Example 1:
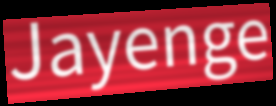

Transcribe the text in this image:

Jayenge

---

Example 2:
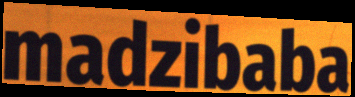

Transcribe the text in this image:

madzibaba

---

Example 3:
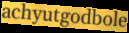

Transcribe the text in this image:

achyutgodbole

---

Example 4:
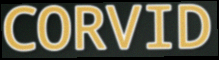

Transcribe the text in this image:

CORVID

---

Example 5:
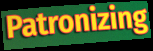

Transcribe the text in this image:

Patronizing